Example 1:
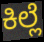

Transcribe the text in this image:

ಕಿಲ್ಲೆ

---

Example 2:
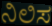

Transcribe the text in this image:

ನಿಲಿಸ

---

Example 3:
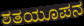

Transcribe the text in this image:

ಶತಯೂಪನ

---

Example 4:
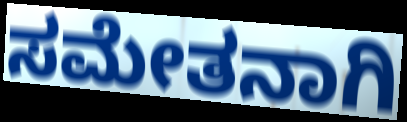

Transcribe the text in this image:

ಸಮೇತನಾಗಿ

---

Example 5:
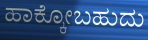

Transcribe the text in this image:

ಹಾಕ್ಕೋಬಹುದು